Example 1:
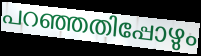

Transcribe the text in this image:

പറഞ്ഞതിപ്പോഴും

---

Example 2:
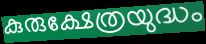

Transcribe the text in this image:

കുരുക്ഷേത്രയുദ്ധം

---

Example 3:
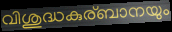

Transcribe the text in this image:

വിശുദ്ധകുര്ബാനയും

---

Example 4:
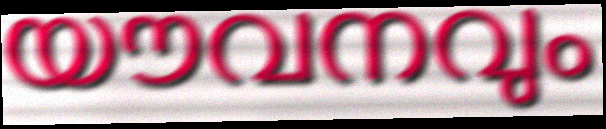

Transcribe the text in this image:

യൗവനവും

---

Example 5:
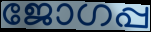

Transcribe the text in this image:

ജോഗപ്പ